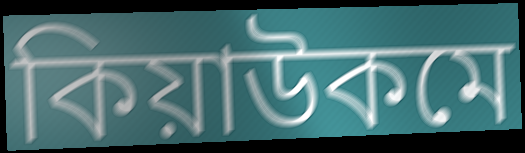
কিয়াউকমে